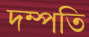
দম্পতি